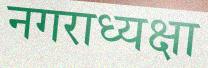
नगराध्यक्षा